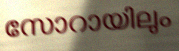
സോറായിലും